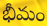
భీమం